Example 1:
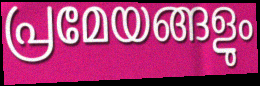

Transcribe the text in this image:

പ്രമേയങ്ങളും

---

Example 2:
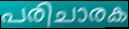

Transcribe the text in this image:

പരിചാരക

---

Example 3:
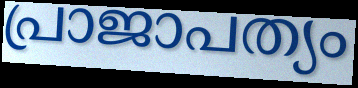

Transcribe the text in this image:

പ്രാജാപത്യം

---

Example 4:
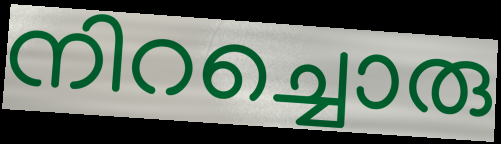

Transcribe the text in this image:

നിറച്ചൊരു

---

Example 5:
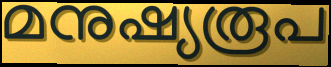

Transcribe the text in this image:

മനുഷ്യരൂപ